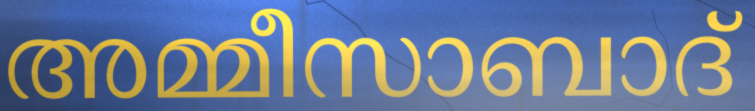
അമ്മീസാബാദ്